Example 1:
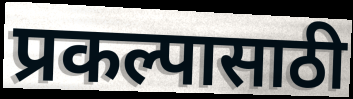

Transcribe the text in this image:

प्रकल्पासाठी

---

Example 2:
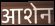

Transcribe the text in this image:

आशेन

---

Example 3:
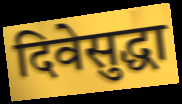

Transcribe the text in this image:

दिवेसुद्धा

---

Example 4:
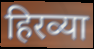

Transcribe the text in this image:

हिरव्‍या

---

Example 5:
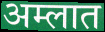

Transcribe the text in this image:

अम्लात